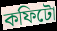
কফিটো